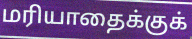
மரியாதைக்குக்